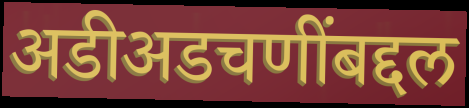
अडीअडचणींबद्दल